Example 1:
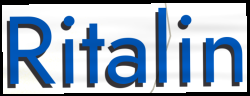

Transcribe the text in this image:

Ritalin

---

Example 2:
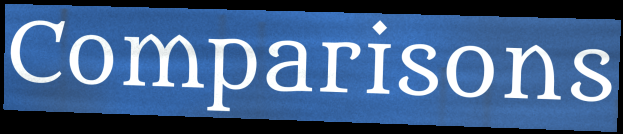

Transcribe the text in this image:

Comparisons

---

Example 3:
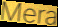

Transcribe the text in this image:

Mera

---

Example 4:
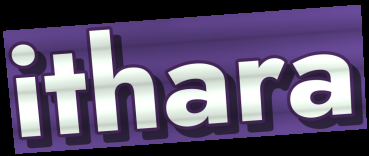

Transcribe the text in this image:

ithara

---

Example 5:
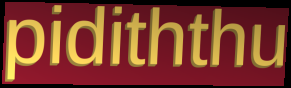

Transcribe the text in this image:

pidiththu